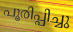
പൂരിപ്പിച്ചു